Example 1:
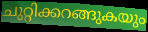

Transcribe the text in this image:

ചുറ്റിക്കറങ്ങുകയും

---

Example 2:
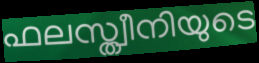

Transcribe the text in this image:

ഫലസ്ത്വീനിയുടെ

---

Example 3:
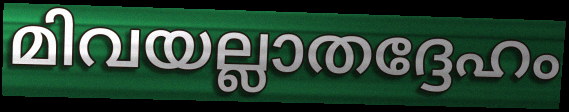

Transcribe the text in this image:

മിവയല്ലാതദ്ദേഹം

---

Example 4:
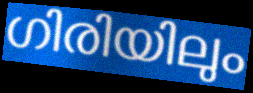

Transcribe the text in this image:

ഗിരിയിലും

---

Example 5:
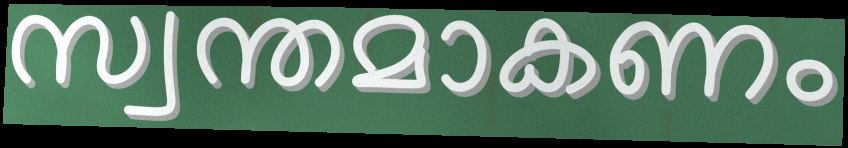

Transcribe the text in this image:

സ്വന്തമാകണം